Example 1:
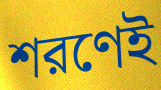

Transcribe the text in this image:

শরণেই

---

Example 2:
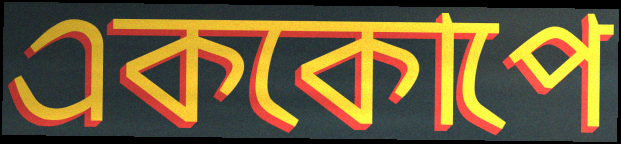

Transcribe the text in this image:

এককোপে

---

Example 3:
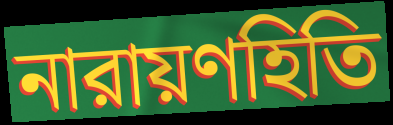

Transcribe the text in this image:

নারায়ণহিতি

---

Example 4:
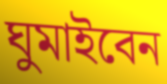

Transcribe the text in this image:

ঘুমাইবেন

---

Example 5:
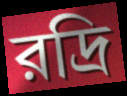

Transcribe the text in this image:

রদ্রি